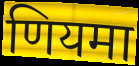
णियमा